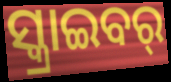
ସ୍କ୍ରାଇବର୍